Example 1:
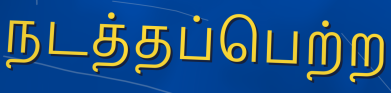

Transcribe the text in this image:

நடத்தப்பெற்ற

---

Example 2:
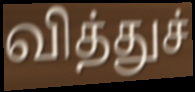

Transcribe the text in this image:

வித்துச்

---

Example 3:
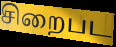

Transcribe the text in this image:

சிறைபட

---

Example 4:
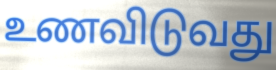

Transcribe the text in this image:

உணவிடுவது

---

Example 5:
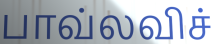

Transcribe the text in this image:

பாவ்லவிச்